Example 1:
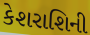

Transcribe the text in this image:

કેશરાશિની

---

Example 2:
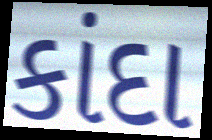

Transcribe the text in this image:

કાંદા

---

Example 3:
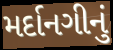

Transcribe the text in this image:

મર્દાનગીનું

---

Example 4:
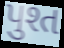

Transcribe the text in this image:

પુશ્ત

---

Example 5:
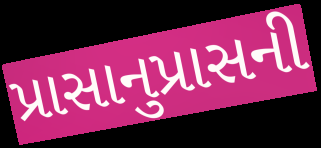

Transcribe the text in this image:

પ્રાસાનુપ્રાસની